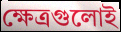
ক্ষেত্রগুলোই